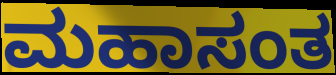
ಮಹಾಸಂತ